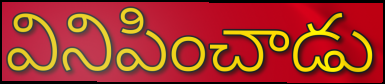
వినిపించాడు